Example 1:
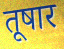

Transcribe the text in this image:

तूषार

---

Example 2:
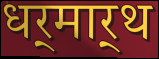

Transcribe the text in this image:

धर्मार्थ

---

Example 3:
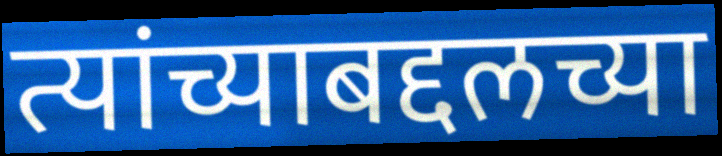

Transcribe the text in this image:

त्यांच्याबद्दलच्या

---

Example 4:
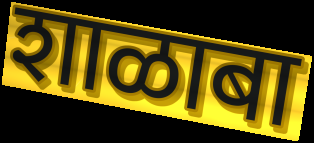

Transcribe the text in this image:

शाळाबा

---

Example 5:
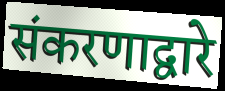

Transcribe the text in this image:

संकरणाद्वारे